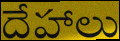
దేహాలు